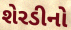
શેરડીનો